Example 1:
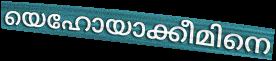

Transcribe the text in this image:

യെഹോയാക്കീമിനെ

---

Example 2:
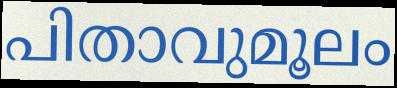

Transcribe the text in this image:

പിതാവുമൂലം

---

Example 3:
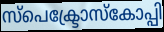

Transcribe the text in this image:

സ്പെക്ട്രോസ്കോപ്പി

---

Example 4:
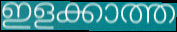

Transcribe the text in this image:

ഇളക്കാത്ത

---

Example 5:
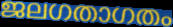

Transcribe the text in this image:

ജലഗതാഗതം